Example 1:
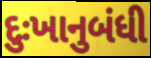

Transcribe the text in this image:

દુઃખાનુબંધી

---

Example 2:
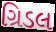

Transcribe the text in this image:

ગ્રિડલ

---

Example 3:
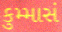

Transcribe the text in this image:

કુમ્માસં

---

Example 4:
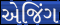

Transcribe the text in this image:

એજિંગ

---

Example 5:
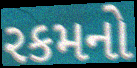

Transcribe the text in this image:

રકમનો